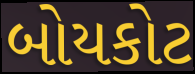
બોયકોટ